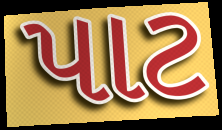
પાટ